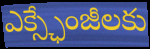
ఎక్స్ఛేంజీలకు